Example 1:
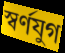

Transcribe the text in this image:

স্বর্ণযুগ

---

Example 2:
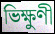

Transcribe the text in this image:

ভিক্ষুণী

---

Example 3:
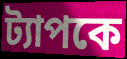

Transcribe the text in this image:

ট্যাপকে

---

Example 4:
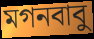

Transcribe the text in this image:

মগনবাবু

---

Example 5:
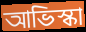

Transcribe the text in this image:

আভিস্কা